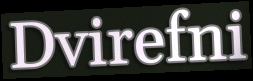
Dvirefni